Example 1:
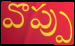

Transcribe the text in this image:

వొప్పు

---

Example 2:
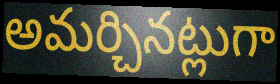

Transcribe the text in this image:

అమర్చినట్లుగా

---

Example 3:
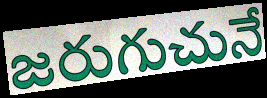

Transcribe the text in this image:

జరుగుచునే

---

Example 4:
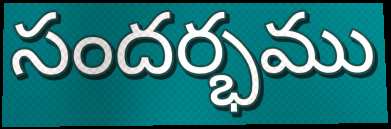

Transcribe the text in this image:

సందర్భము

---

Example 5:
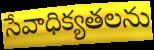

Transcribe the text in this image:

సేవాధిక్యతలను